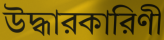
উদ্ধারকারিণী